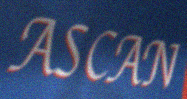
ASCAN